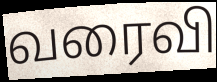
வரைவி